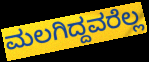
ಮಲಗಿದ್ದವರೆಲ್ಲ